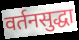
वर्तनसुद्धा